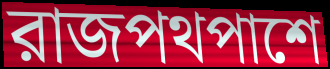
রাজপথপাশে